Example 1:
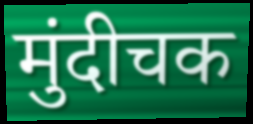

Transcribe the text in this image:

मुंदीचक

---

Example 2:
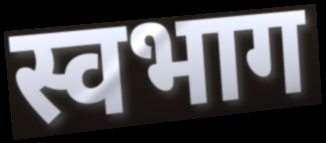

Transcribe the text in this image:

स्वभाग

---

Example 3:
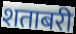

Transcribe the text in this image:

शताबरी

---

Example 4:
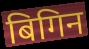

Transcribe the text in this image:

बिगिन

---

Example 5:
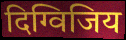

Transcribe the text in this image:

दिग्विजिय